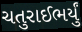
ચતુરાઈભર્યું